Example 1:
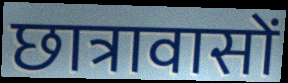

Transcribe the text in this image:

छात्रावासों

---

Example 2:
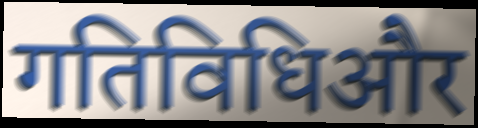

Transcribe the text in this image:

गतिविधिऔर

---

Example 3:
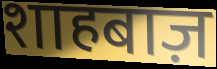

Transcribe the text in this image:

शाहबाज़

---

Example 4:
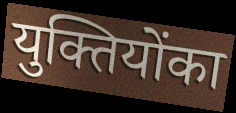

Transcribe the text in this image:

युक्तियोंका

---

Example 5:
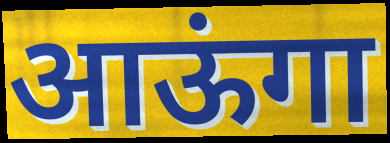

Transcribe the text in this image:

आऊंगा